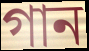
গান